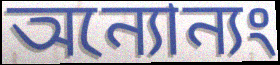
অন্যোন্যং